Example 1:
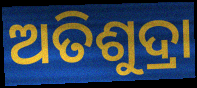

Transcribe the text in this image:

ଅତିଶୁଦ୍ରା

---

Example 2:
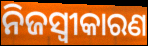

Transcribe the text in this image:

ନିଜସ୍ବୀକାରଣ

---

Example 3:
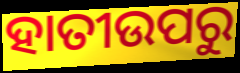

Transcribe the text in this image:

ହାତୀଉପରୁ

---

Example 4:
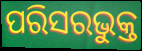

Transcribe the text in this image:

ପରିସରଭୁକ୍ତ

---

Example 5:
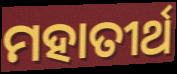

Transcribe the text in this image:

ମହାତୀର୍ଥ